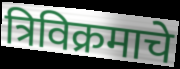
त्रिविक्रमाचे